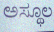
ಅಸ್ಥೂಲ